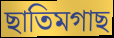
ছাতিমগাছ